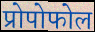
प्रोपोफोल